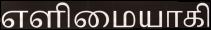
எளிமையாகி